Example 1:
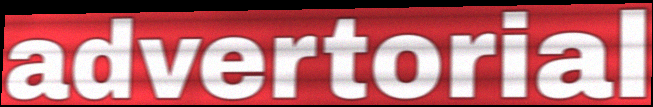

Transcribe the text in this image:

advertorial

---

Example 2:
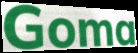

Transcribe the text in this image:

Goma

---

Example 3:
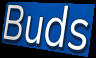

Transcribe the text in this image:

Buds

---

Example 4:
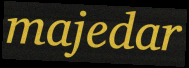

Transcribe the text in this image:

majedar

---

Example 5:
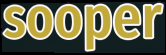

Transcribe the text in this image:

sooper